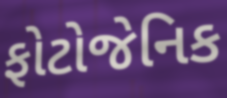
ફોટોજેનિક